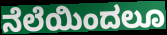
ನೆಲೆಯಿಂದಲೂ